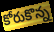
కోరుకొన్న